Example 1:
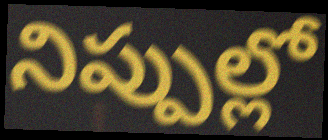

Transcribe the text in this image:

నిప్పుల్లో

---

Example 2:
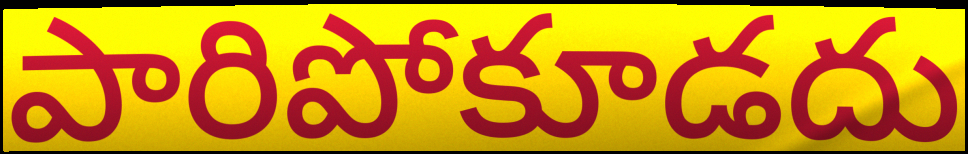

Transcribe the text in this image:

పారిపోకూడదు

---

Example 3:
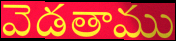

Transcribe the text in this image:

వెడతాము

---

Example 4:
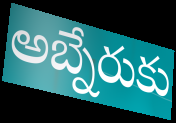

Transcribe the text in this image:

అబ్నేరుకు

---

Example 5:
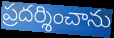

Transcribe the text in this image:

ప్రదర్శించాను